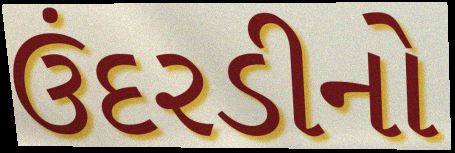
ઉંદરડીનો